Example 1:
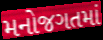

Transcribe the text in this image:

મનોજગતમાં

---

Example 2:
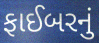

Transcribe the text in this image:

ફાઈબરનું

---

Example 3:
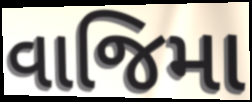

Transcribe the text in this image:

વાજિમા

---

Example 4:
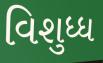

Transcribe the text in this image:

વિશુધ્ધ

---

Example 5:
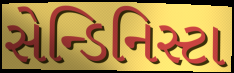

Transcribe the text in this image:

સેન્ડિનિસ્ટા